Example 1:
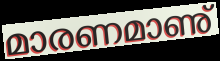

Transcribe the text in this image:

മാരണമാണു്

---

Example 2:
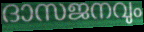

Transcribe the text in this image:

ദാസജനവും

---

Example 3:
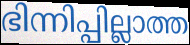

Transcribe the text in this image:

ഭിന്നിപ്പില്ലാത്ത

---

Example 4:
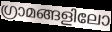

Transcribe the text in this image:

ഗ്രാമങ്ങളിലോ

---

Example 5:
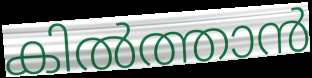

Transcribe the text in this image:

കിൽത്താൻ